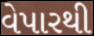
વેપારથી